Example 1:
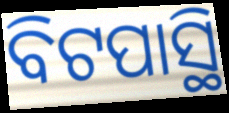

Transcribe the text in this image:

ବିଟପାସ୍ଥି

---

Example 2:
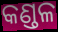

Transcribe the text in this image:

କଣ୍ଡଳ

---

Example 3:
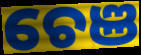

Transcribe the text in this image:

ଚେଞ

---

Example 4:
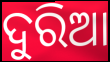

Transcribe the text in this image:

ଦୁରିଆ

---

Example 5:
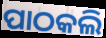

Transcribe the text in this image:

ପାଠକଲି